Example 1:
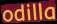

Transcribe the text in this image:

odilla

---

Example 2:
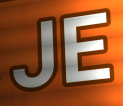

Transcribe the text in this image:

JE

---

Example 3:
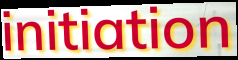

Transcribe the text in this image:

initiation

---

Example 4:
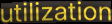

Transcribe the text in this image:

utilization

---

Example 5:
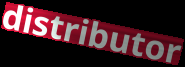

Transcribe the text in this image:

distributor